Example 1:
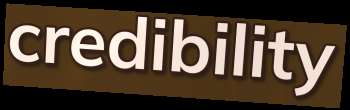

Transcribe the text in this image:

credibility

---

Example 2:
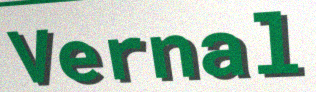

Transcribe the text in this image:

Vernal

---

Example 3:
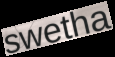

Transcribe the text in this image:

swetha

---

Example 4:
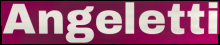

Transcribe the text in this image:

Angeletti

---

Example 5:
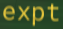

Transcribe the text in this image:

expt